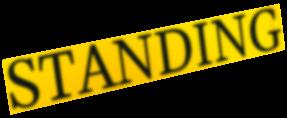
STANDING